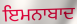
ਇਮਨਾਬਾਦ